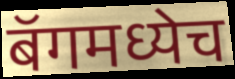
बॅगमध्येच